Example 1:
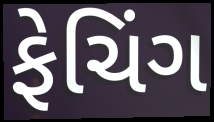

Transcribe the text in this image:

ફેચિંગ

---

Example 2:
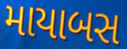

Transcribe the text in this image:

માયાબસ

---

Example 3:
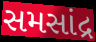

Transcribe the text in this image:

સમસાંદ્ર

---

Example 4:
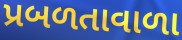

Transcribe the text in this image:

પ્રબળતાવાળા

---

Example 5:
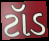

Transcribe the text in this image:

ટૉડ